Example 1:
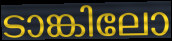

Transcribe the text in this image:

ടാങ്കിലോ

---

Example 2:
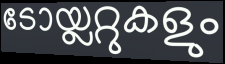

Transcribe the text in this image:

ടോയ്ലറ്റുകളും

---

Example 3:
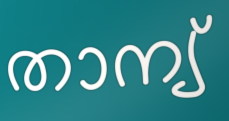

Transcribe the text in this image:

താന്യ്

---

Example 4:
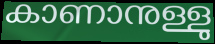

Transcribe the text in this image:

കാണാനുള്ളു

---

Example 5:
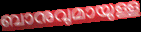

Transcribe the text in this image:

ബാനുവുമായുള്ള